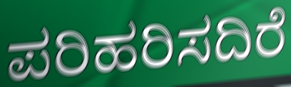
ಪರಿಹರಿಸದಿರೆ